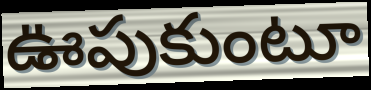
ఊపుకుంటూ